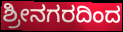
ಶ್ರೀನಗರದಿಂದ